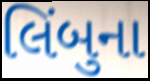
લિંબુના